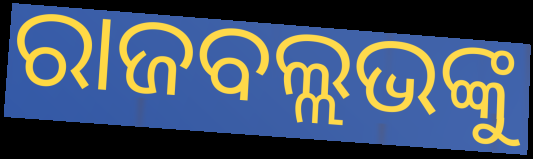
ରାଜବଲ୍ଲଭଙ୍କୁ